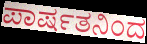
ಪಾರ್ಷತನಿಂದ